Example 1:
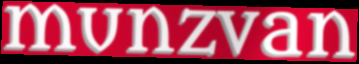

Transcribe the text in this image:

munzvan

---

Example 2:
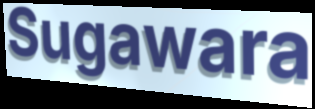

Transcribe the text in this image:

Sugawara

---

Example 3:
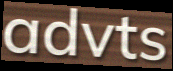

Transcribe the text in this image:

advts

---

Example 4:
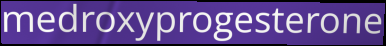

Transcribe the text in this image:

medroxyprogesterone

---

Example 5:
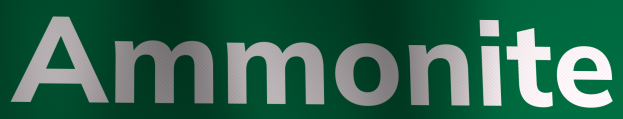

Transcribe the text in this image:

Ammonite